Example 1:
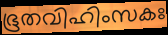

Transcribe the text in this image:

ഭൂതവിഹിംസകഃ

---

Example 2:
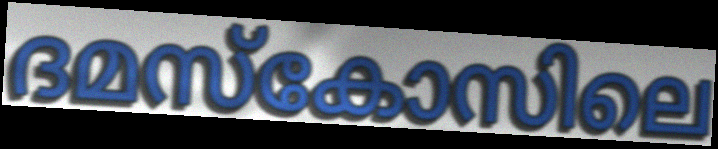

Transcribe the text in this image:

ദമസ്കോസിലെ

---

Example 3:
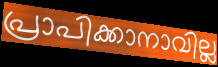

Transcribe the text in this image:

പ്രാപിക്കാനാവില്ല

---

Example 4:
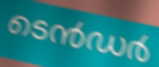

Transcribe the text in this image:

ടെൻഡർ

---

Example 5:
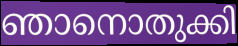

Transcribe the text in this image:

ഞാനൊതുക്കി